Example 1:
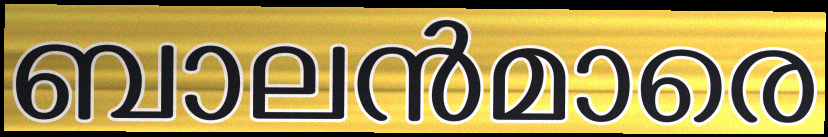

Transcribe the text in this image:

ബാലൻമാരെ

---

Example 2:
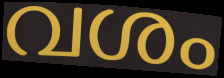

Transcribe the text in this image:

വശം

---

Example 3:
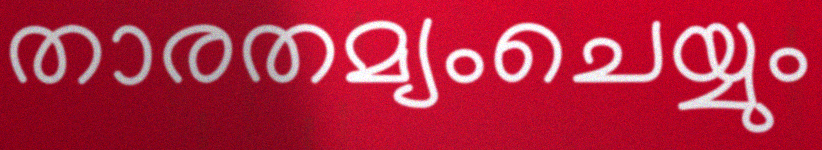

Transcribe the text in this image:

താരതമ്യംചെയ്യും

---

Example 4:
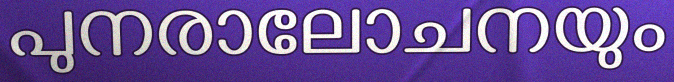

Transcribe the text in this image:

പുനരാലോചനയും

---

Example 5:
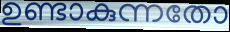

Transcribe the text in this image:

ഉണ്ടാകുന്നതോ